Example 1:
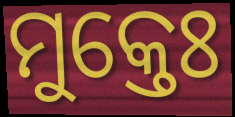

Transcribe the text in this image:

ମୁକ୍ତେଃ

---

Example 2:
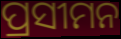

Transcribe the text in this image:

ପ୍ରସୀମନ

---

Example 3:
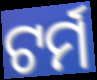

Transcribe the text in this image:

ଟର୍ମ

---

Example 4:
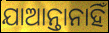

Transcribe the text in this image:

ଯାଆନ୍ତାନାହିଁ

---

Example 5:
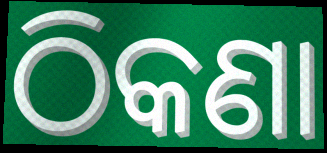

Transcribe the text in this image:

ଠିକଣା